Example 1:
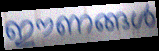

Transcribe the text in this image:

ഈണങ്ങൾ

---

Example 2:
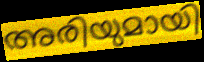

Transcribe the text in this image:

അരിയുമായി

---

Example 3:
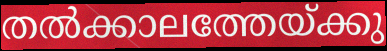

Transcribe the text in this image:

തൽക്കാലത്തേയ്ക്കു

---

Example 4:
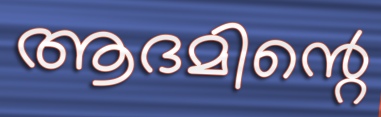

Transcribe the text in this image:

ആദമിന്റെ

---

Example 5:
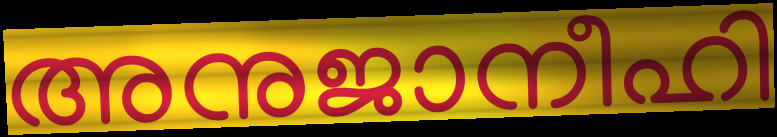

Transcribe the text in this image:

അനുജാനീഹി